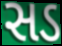
સડ